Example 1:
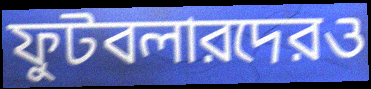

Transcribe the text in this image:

ফুটবলারদেরও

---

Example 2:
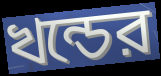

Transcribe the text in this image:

খন্ডের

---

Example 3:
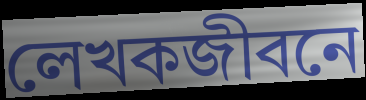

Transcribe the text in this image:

লেখকজীবনে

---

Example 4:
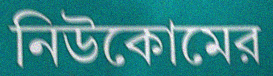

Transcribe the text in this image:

নিউকোমের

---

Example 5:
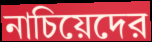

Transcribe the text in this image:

নাচিয়েদের